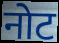
नोट